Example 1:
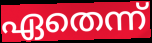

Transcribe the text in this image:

ഏതെന്ന്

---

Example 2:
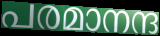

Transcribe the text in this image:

പരമാനന്ദ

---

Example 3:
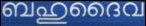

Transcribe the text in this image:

ബഹുദൈവ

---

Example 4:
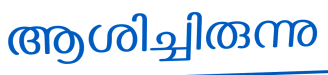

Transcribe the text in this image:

ആശിച്ചിരുന്നു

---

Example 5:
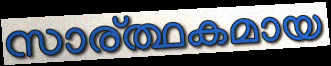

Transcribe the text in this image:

സാര്ത്ഥകമായ